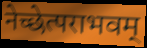
नेच्छेत्पराभवम्